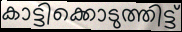
കാട്ടിക്കൊടുത്തിട്ട്